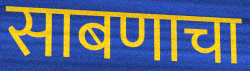
साबणाचा